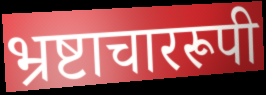
भ्रष्टाचाररूपी